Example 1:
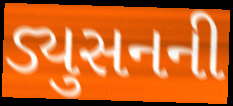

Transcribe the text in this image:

ડ્યુસનની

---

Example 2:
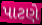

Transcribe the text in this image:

પાટણે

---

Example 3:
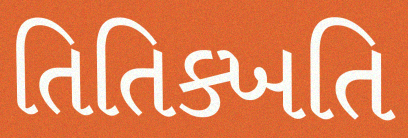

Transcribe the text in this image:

તિતિક્ખતિ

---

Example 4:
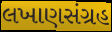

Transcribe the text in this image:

લખાણસંગ્રહ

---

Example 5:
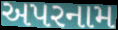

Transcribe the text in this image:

અપરનામ